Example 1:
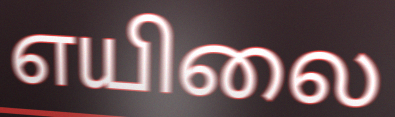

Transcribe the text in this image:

எயிலை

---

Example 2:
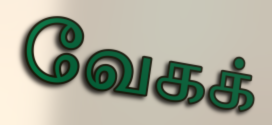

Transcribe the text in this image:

வேகக்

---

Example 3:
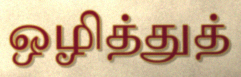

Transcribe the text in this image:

ஒழித்துத்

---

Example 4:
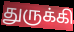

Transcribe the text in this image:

துருக்கி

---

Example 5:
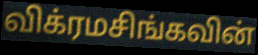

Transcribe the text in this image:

விக்ரமசிங்கவின்